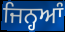
ਜਿਨ੍ਹਆੰ